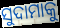
ସୁଦାମାକୁ